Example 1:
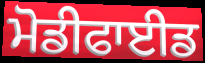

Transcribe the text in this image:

ਮੋਡੀਫਾਈਡ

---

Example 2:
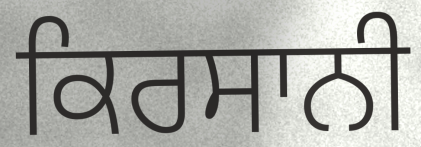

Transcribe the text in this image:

ਕਿਰਸਾਨੀ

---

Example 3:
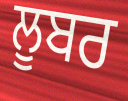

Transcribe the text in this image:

ਲੂਬਰ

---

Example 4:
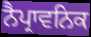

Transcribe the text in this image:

ਨੈਪ੍ਰਾਵਨਿਕ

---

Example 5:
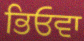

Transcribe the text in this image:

ਭਿਓਵਾ